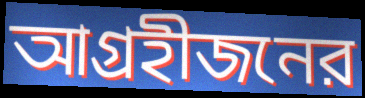
আগ্রহীজনের